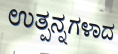
ಉತ್ಪನ್ನಗಳಾದ